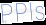
PPIs